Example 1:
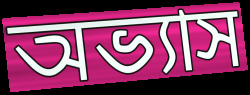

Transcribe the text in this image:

অভ্যাস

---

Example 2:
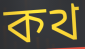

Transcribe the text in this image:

কথ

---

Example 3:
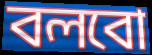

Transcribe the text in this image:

বলবো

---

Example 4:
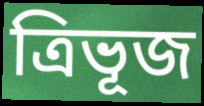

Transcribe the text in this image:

ত্ৰিভূজ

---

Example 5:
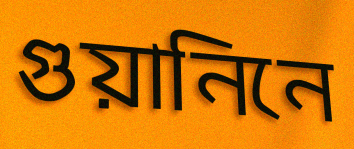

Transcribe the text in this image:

গুয়ানিনে